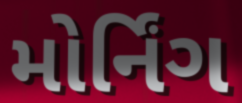
મોર્નિંગ